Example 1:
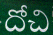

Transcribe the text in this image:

దోచి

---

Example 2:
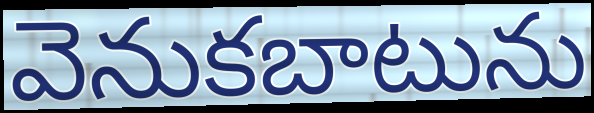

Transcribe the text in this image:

వెనుకబాటును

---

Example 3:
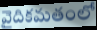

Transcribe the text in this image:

వైదికమతంలో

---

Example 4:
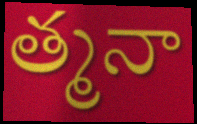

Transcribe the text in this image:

త్మనా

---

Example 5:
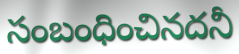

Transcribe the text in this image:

సంబంధించినదనీ